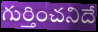
గుర్తించనిదే